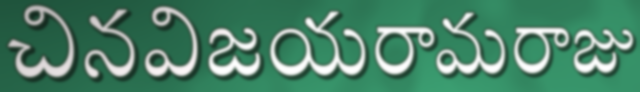
చినవిజయరామరాజు